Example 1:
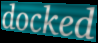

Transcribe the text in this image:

docked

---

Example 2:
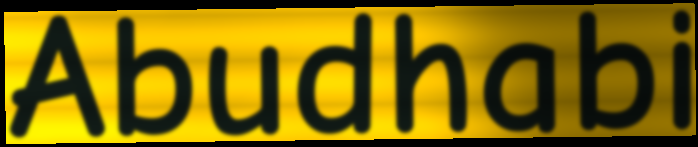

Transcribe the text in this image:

Abudhabi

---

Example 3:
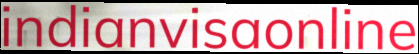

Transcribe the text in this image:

indianvisaonline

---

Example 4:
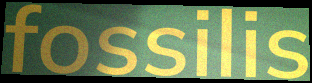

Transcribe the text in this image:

fossilis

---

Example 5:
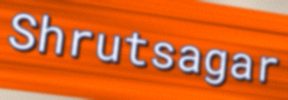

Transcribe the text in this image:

Shrutsagar